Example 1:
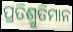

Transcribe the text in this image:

ପ୍ରତିଶ୍ରୁତିମାନ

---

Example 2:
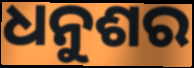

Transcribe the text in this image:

ଧନୁଶର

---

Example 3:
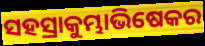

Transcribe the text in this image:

ସହସ୍ରାକୁମ୍ଭାଭିଷେକର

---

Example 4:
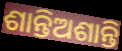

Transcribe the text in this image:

ଶାନ୍ତିଅଶାନ୍ତି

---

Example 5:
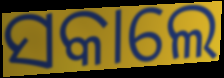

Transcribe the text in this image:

ସକାଲେ